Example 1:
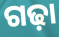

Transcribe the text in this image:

ଗଢ଼ା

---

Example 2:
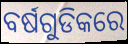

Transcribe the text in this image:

ବର୍ଷଗୁଡିକରେ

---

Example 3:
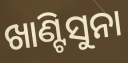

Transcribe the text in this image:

ଖାଣ୍ଟିସୁନା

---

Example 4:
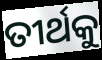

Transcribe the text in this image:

ତୀର୍ଥକୁ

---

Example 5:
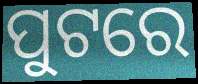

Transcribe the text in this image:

ପୁଟରେ